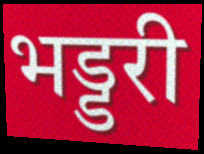
भड्डरी